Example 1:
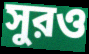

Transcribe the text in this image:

সুরও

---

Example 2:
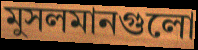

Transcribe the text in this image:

মুসলমানগুলো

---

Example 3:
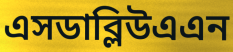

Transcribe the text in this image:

এসডাব্লিউএএন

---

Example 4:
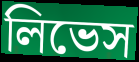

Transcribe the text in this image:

লিভেস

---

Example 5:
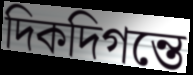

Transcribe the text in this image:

দিকদিগন্তে